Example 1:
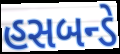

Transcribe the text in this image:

હસબન્ડે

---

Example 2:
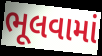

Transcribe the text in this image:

ભૂલવામાં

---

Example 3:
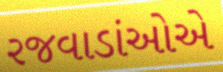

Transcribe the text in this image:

રજવાડાંઓએ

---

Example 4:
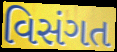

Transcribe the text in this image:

વિસંગત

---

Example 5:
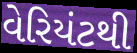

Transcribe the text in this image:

વેરિયંટથી